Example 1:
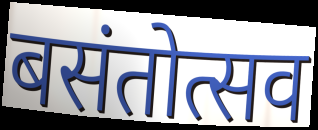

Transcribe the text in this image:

बसंतोत्सव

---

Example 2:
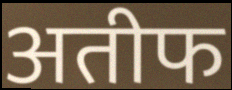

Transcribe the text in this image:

अतीफ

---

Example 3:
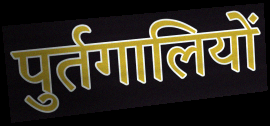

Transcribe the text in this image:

पुर्तगालियों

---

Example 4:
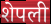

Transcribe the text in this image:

शेपली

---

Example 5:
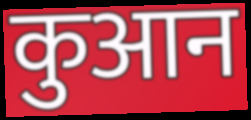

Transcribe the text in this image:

कुआन